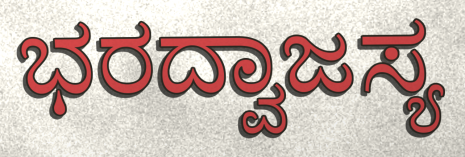
ಭರದ್ವಾಜಸ್ಯ